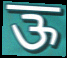
ক্ত